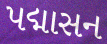
પદ્માસન